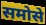
समोसे